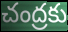
చంద్రకు